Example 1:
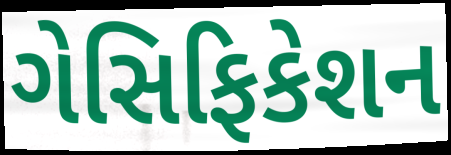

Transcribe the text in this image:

ગેસિફિકેશન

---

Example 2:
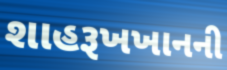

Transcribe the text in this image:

શાહરૂખખાનની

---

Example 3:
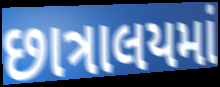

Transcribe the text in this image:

છાત્રાલયમાં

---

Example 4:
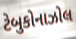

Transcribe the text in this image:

ટેબુકોનાઝોલ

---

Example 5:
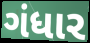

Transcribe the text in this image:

ગંધાર